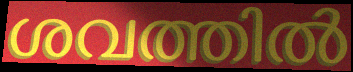
ശവത്തിൽ